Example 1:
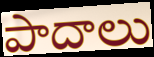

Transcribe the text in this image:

పాదాలు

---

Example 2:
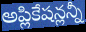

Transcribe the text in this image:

అప్లికేషన్లన్నీ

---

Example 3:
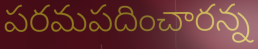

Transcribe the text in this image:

పరమపదించారన్న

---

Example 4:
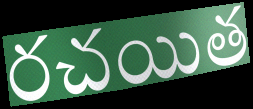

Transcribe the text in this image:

రచయిత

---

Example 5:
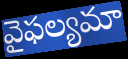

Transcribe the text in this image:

వైఫల్యమా